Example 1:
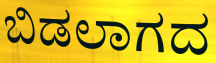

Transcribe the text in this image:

ಬಿಡಲಾಗದ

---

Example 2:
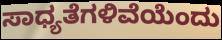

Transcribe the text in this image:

ಸಾಧ್ಯತೆಗಳಿವೆಯೆಂದು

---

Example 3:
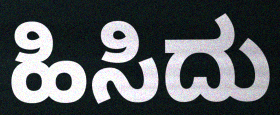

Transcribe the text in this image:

ಹಿಸಿದು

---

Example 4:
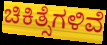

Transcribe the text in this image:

ಚಿಕಿತ್ಸೆಗಳಿವೆ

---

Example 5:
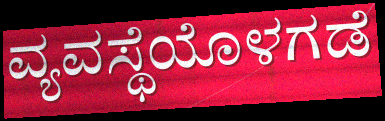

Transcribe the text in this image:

ವ್ಯವಸ್ಥೆಯೊಳಗಡೆ